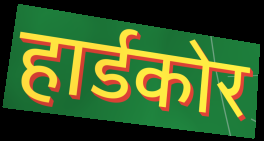
हार्डकोर